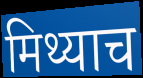
मिथ्याच